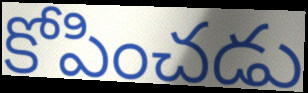
కోపించడు